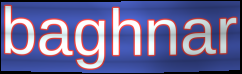
baghnar